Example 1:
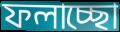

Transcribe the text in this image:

ফলাচ্ছো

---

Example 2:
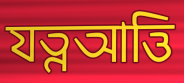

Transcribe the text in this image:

যত্নআত্তি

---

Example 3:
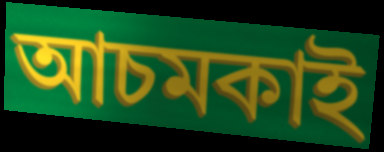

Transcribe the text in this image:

আচমকাই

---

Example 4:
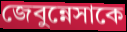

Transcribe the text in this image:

জেবুন্নেসাকে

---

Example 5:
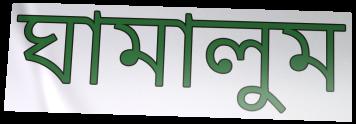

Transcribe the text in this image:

ঘামালুম